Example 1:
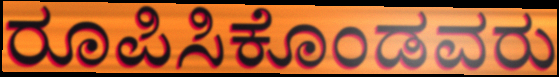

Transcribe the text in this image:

ರೂಪಿಸಿಕೊಂಡವರು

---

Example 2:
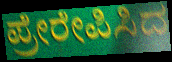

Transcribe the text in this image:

ಪ್ರೇರೇಪಿಸಿದ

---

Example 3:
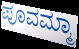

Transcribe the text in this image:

ಪೂವಮ್ಮಾ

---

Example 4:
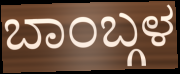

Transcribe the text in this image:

ಬಾಂಬ್ಗಳ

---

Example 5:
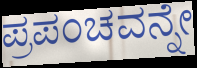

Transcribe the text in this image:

ಪ್ರಪಂಚವನ್ನೇ